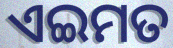
ଏଇମତ